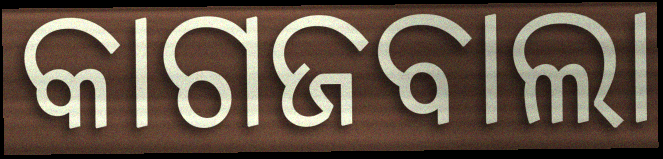
କାଗଜବାଲା